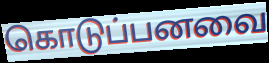
கொடுப்பனவை